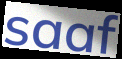
saaf